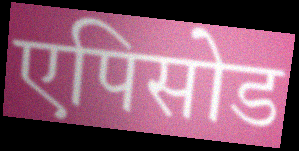
एपिसोड